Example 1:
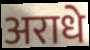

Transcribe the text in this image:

अराधे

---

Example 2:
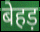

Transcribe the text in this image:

बेहड़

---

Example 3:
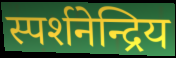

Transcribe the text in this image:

स्पर्शनेन्द्रिय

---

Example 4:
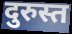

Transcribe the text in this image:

दुरुस्त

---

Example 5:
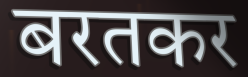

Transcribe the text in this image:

बरतकर